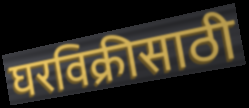
घरविक्रीसाठी